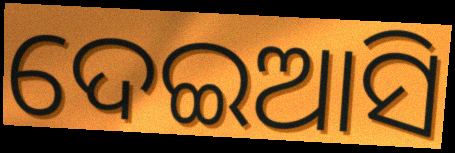
ଦେଇଆସି